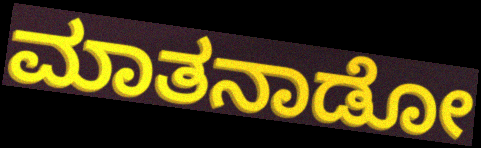
ಮಾತನಾಡೋ